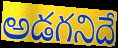
అడగనిదే